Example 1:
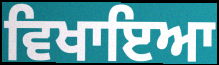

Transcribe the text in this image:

ਵਿਖਾਇਆ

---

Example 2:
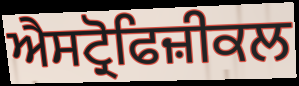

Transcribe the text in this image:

ਐਸਟ੍ਰੋਫਿਜ਼ੀਕਲ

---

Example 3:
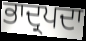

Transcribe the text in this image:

ਭਾਦ੍ਰਪਦਾ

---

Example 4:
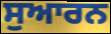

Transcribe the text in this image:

ਸੁਆਰਨ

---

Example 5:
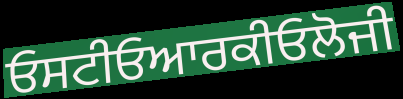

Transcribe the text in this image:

ਓਸਟੀਓਆਰਕੀਓਲੋਜੀ